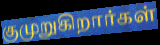
குமுறுகிறார்கள்